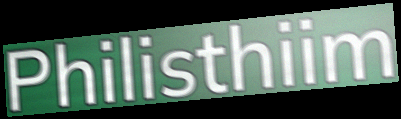
Philisthiim